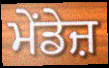
ਮੇਂਡੇਜ਼